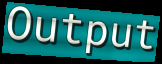
Output